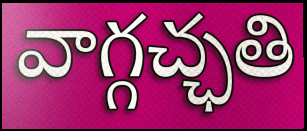
వాగ్గచ్ఛతి